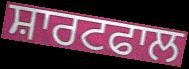
ਸ਼ਾਰਟਫਾਲ